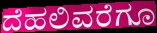
ದೆಹಲಿವರೆಗೂ